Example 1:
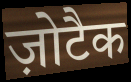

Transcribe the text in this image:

ज़ोटैक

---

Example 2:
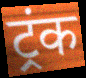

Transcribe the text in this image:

ट्रंक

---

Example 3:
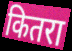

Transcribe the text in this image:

कितरा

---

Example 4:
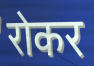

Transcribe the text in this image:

रोकर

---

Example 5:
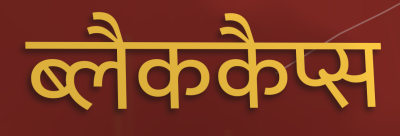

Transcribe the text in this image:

ब्लैककैप्स